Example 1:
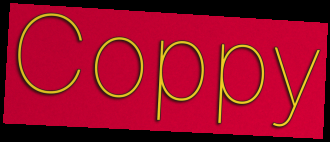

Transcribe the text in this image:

Coppy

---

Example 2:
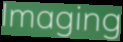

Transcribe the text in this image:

Imaging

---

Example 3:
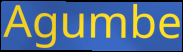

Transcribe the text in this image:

Agumbe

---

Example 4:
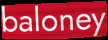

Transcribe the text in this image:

baloney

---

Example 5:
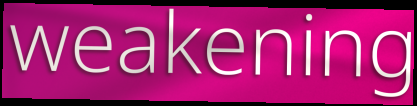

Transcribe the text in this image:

weakening